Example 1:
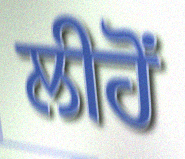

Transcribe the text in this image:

ਲੀਹੋਂ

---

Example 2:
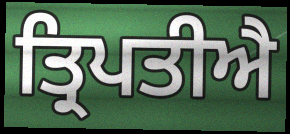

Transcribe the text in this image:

ਤ੍ਰਿਪਤੀਐ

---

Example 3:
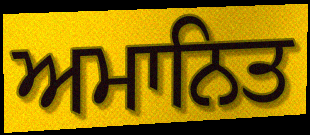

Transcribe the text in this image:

ਅਮਾਨਿਤ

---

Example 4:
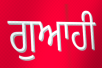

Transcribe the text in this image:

ਗੁਆਹੀ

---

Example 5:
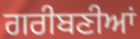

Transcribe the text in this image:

ਗਰੀਬਣੀਆਂ